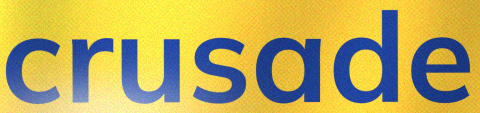
crusade